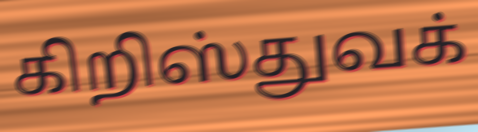
கிறிஸ்துவக்